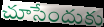
చూసేందుకు